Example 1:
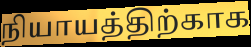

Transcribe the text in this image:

நியாயத்திற்காக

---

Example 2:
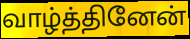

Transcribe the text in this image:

வாழ்த்தினேன்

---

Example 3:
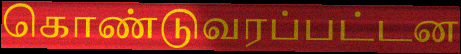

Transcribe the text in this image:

கொண்டுவரப்பட்டன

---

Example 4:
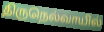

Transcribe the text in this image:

திருநெல்வாயில்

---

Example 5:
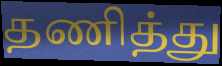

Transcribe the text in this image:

தணித்து